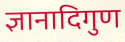
ज्ञानादिगुण